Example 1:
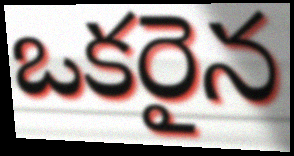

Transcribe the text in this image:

ఒకరైన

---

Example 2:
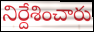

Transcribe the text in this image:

నిర్దేశించారు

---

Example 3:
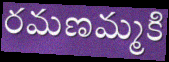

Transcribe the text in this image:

రమణమ్మకి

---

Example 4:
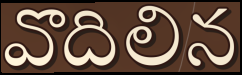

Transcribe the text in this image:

వొదిలిన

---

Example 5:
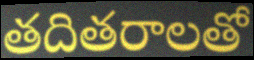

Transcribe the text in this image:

తదితరాలతో